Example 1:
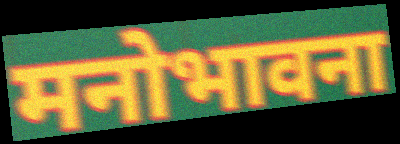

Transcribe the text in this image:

मनोभावना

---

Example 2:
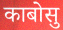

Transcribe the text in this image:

काबोसु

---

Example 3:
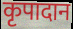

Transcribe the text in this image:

कृपादान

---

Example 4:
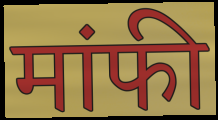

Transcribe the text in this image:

मांफी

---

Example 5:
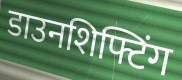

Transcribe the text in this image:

डाउनशिफ्टिंग